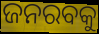
ଜନରବକୁ